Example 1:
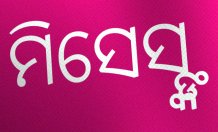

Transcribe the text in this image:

ମିସେସ୍ଙ୍କ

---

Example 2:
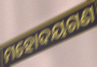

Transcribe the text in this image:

ମହୋଦୟଗଣ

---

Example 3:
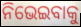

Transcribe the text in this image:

ନିଭେଇବାକୁ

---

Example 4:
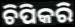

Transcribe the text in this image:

ଚିପିକରି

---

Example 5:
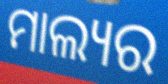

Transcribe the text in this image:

ମାଲ୍ୟର